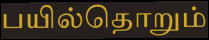
பயில்தொறும்